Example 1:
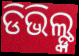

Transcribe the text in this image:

ଡିଭିଲ୍ଙ୍କ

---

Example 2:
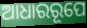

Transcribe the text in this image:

ଆଧାରରୂପେ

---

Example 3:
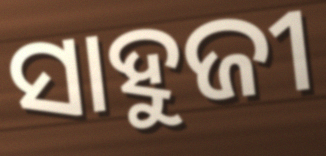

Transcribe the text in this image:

ସାହୁଜୀ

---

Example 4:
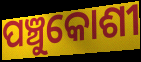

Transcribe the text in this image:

ପଞ୍ଚୁକୋଶୀ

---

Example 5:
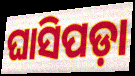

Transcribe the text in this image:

ଘାସିପଡ଼ା